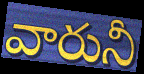
వారునీ